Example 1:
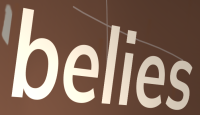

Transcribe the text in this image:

belies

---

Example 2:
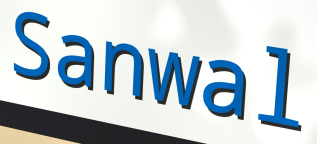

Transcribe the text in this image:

Sanwal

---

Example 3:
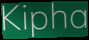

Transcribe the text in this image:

Kipha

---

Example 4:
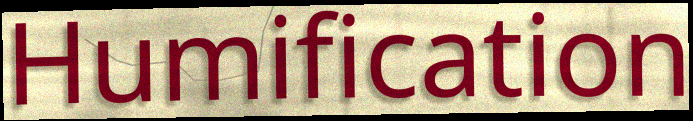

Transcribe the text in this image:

Humification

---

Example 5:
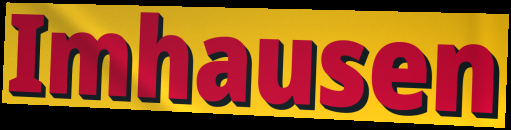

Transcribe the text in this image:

Imhausen